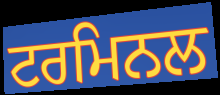
ਟਰਮਿਨਲ